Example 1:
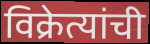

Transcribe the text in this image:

विक्रेत्यांची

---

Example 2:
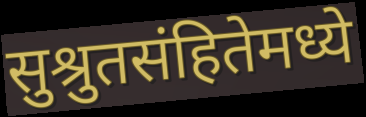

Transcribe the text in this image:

सुश्रुतसंहितेमध्ये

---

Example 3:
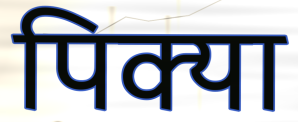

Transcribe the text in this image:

पिक्या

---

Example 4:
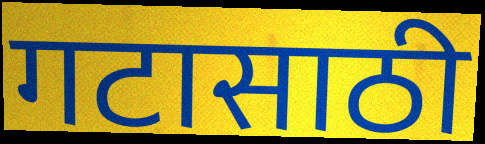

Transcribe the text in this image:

गटासाठी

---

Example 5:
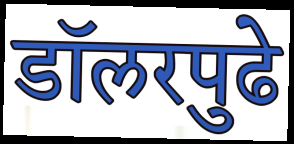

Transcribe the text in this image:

डॉलरपुढे